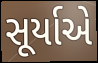
સૂર્યાએ